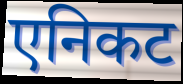
एनिकट